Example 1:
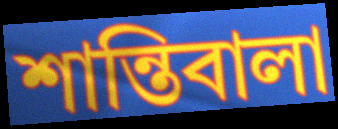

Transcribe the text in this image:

শান্তিবালা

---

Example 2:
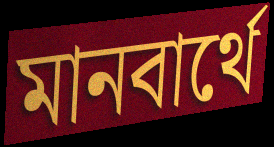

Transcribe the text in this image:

মানবার্থে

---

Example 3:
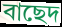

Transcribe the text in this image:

বাছেদ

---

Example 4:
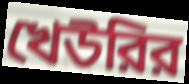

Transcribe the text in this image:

খেউরির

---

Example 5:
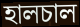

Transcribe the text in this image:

হালচাল